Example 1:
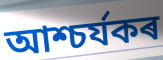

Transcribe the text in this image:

আশ্চৰ্যকৰ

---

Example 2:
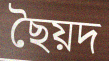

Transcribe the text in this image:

ছৈয়দ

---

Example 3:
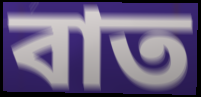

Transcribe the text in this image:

বাত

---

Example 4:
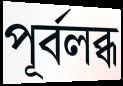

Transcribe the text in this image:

পূৰ্বলব্ধ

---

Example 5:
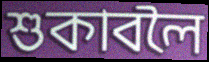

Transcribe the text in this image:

শুকাবলৈ